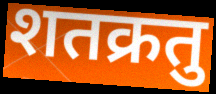
शतक्रतु